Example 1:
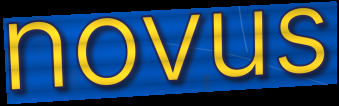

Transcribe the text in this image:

novus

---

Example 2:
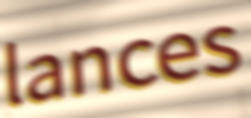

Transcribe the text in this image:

lances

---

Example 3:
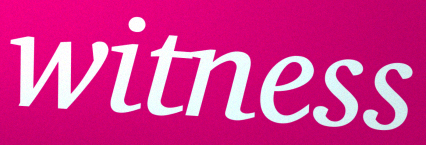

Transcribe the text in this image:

witness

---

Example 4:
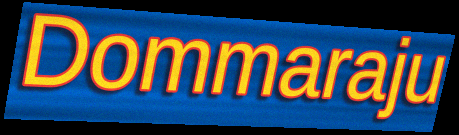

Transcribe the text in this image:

Dommaraju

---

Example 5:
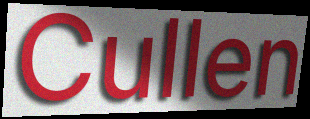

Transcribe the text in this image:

Cullen